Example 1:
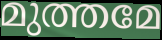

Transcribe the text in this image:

മുത്തമേ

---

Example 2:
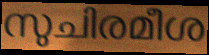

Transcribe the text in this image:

സുചിരമീശ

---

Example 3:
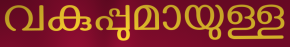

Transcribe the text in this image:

വകുപ്പുമായുള്ള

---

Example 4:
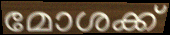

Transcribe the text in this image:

മോശക്ക്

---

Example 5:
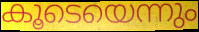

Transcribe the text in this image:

കൂടെയെന്നും